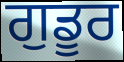
ਗੁਡੂਰ